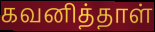
கவனித்தாள்